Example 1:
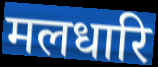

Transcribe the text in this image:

मलधारि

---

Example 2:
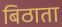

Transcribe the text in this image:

बिठाता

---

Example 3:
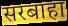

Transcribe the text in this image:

सरबाहा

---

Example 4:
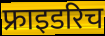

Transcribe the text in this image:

फ्राइडरिच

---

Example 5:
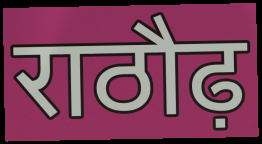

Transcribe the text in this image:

राठौढ़